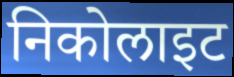
निकोलाइट